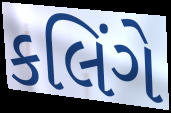
કલિંગે